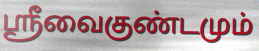
ஸ்ரீவைகுண்டமும்